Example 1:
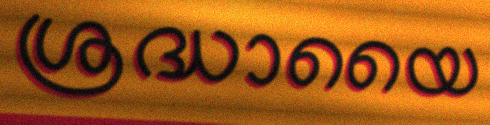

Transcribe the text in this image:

ശ്രദ്ധായൈ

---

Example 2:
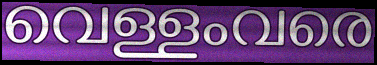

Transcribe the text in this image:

വെള്ളംവരെ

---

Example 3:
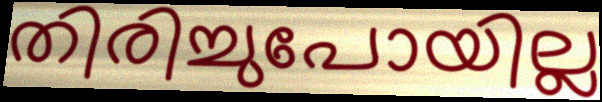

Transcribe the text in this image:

തിരിച്ചുപോയില്ല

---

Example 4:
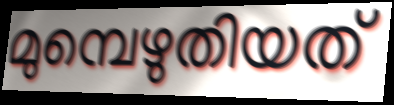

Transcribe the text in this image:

മുമ്പെഴുതിയത്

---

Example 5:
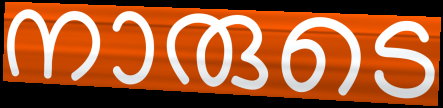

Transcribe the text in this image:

നാരുടെ